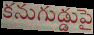
కనుగుడ్డుపై